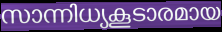
സാന്നിധ്യകൂടാരമായ